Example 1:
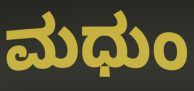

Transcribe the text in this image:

ಮಧುಂ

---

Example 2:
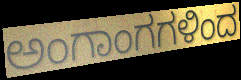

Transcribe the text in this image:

ಅಂಗಾಂಗಗಳಿಂದ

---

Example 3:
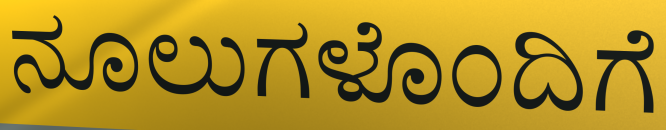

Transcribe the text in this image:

ನೂಲುಗಳೊಂದಿಗೆ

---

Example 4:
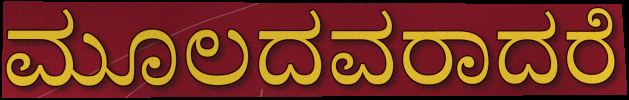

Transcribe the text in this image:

ಮೂಲದವರಾದರೆ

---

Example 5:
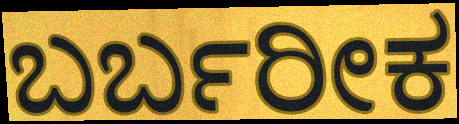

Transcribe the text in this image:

ಬರ್ಬರೀಕ